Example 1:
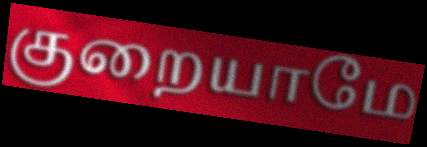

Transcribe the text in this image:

குறையாமே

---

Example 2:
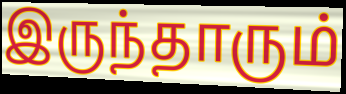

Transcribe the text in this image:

இருந்தாரும்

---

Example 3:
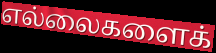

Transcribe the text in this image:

எல்லைகளைக்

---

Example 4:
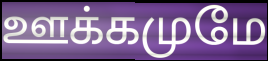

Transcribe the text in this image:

ஊக்கமுமே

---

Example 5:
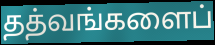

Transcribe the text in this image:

தத்வங்களைப்